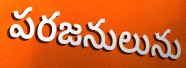
పరజనులును